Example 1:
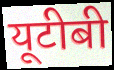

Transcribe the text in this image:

यूटीबी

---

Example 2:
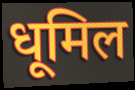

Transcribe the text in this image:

धूमिल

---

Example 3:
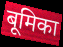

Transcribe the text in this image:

बूमिका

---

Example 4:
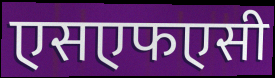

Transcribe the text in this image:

एसएफएसी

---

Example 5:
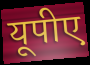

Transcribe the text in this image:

यूपीए